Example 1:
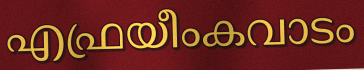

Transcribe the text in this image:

എഫ്രയീംകവാടം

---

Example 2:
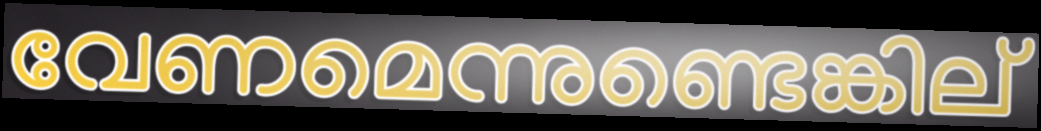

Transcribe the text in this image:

വേണമെന്നുണ്ടെങ്കില്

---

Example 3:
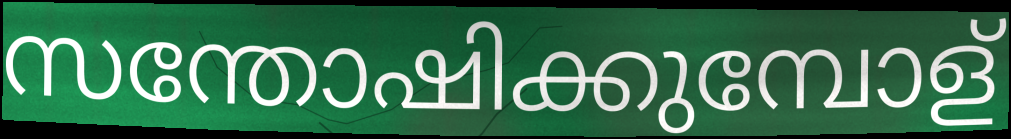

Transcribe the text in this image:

സന്തോഷിക്കുമ്പോള്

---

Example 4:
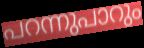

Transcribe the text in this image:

പറന്നുപാറും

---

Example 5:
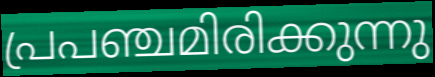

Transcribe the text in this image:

പ്രപഞ്ചമിരിക്കുന്നു